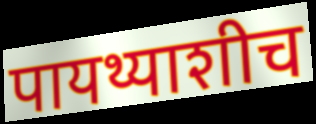
पायथ्याशीच